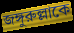
জঙ্গুরুল্লাকে